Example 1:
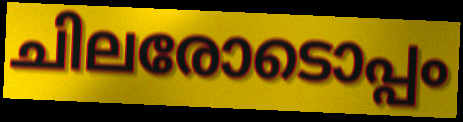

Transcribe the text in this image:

ചിലരോടൊപ്പം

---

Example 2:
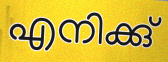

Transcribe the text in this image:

എനിക്കു്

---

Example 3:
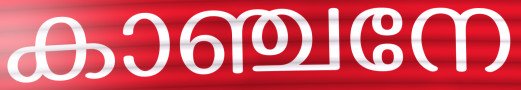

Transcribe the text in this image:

കാഞ്ചനേ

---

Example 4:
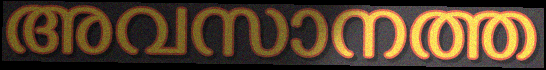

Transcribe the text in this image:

അവസാനത്ത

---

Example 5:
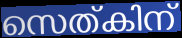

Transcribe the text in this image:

സെത്കിന്